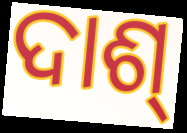
ଦାଶ୍